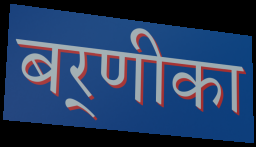
बर्णीका